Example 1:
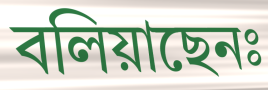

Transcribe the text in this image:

বলিয়াছেনঃ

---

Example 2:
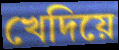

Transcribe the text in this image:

খেদিয়ে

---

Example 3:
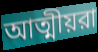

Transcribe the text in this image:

আত্মীয়রা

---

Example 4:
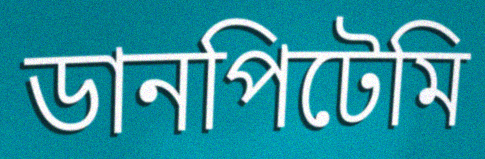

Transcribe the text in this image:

ডানপিটেমি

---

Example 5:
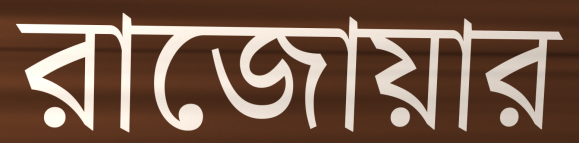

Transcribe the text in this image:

রাজোয়ার